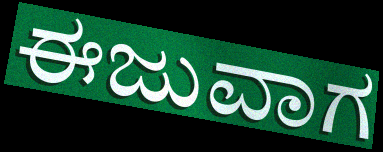
ಈಜುವಾಗ